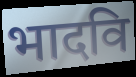
भादवि